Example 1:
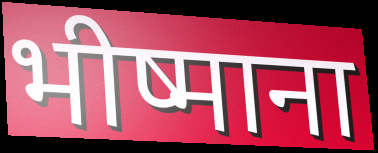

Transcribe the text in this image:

भीष्माना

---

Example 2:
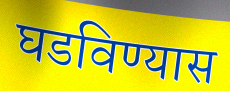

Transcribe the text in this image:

घडविण्यास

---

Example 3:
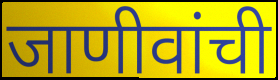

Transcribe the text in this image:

जाणीवांची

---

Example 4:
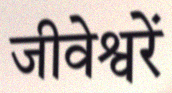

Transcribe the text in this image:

जीवेश्वरें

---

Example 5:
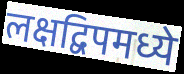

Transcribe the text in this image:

लक्षद्विपमध्ये